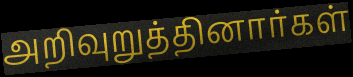
அறிவுறுத்தினார்கள்